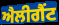
ਐਲੀਗੈਂਟ